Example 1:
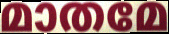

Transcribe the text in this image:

മാതമേ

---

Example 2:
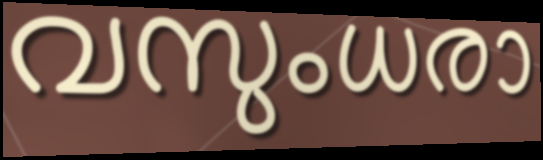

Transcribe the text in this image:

വസുംധരാ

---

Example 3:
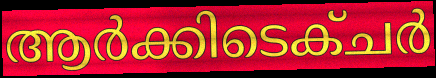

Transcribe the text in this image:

ആർക്കിടെക്ചർ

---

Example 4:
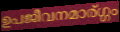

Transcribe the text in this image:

ഉപജീവനമാര്ഗ്ഗം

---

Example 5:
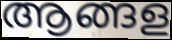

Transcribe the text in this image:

ആങ്ങള